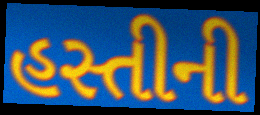
હસ્તીની